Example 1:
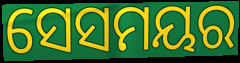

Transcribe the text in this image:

ସେସମୟର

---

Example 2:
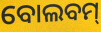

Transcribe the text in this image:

ବୋଲବମ୍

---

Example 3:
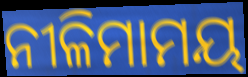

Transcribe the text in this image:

ନୀଳିମାମୟ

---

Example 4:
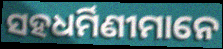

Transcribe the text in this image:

ସହଧର୍ମିଣୀମାନେ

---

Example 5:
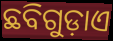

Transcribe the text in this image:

ଛବିଗୁଡ଼ାଏ